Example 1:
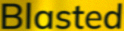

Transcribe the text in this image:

Blasted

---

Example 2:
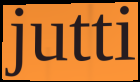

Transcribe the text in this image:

jutti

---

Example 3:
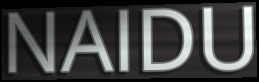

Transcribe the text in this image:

NAIDU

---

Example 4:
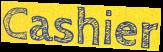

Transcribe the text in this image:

Cashier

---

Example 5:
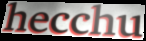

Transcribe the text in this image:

hecchu